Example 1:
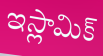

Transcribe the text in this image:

ఇస్లామిక్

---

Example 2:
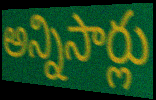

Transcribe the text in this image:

అన్నిసార్లు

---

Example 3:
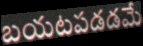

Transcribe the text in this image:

బయటపడడమే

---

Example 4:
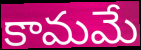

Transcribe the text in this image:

కామమే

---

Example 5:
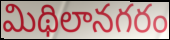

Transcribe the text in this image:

మిథిలానగరం